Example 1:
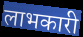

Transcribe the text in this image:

लाभकारी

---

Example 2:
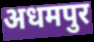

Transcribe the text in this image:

अधमपुर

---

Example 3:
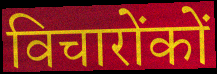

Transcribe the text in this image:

विचारोंकों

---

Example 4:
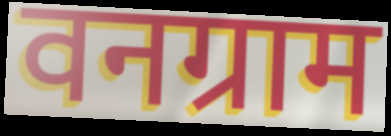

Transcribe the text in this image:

वनग्राम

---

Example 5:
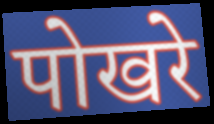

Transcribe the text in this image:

पोखरे